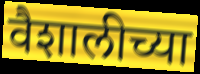
वैशालीच्या